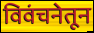
विवंचनेतून